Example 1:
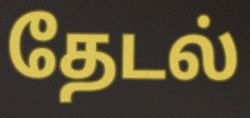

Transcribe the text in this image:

தேடல்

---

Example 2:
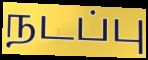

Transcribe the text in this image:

நடப்பு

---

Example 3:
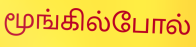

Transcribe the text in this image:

மூங்கில்போல்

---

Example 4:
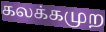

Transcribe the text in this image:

கலக்கமுற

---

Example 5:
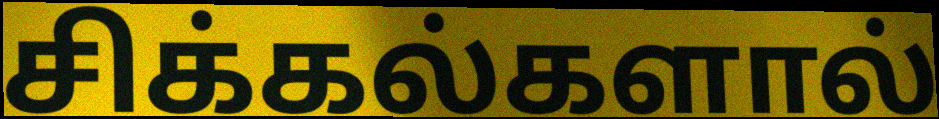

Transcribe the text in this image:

சிக்கல்களால்